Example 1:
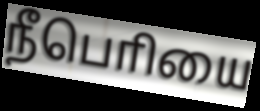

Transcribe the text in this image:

நீபெரியை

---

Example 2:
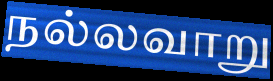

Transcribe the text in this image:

நல்லவாறு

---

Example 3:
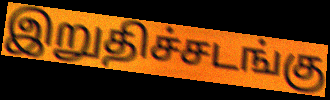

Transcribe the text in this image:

இறுதிச்சடங்கு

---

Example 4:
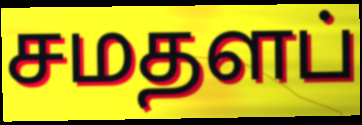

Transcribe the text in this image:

சமதளப்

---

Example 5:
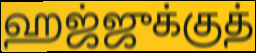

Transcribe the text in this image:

ஹஜ்ஜுக்குத்